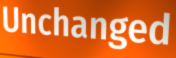
Unchanged